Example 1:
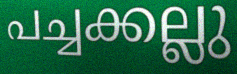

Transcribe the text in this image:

പച്ചക്കല്ലു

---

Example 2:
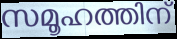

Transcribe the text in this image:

സമൂഹത്തിന്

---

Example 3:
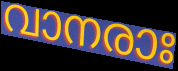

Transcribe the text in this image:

വാനരാഃ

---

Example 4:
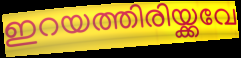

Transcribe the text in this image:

ഇറയത്തിരിയ്ക്കവേ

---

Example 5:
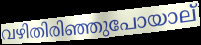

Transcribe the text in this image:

വഴിതിരിഞ്ഞുപോയാല്